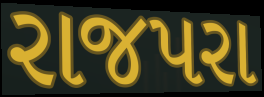
રાજપરા